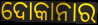
ଦୋକାନାର